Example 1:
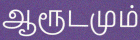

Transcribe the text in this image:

ஆரூடமும்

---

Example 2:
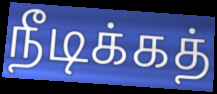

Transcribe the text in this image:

நீடிக்கத்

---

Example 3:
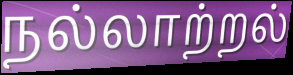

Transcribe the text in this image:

நல்லாற்றல்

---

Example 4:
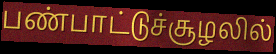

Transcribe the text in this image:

பண்பாட்டுச்சூழலில்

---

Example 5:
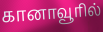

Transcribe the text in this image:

கானாவூரில்